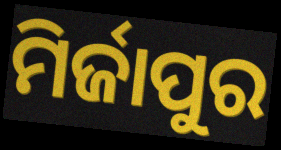
ମିର୍ଜାପୁର